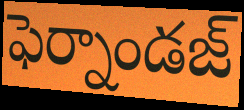
ఫెర్నాండజ్